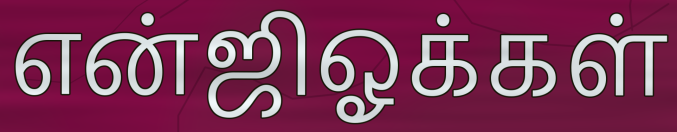
என்ஜிஓக்கள்